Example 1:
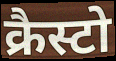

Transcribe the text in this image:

क्रैस्टो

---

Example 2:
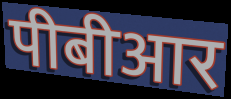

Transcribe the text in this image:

पीबीआर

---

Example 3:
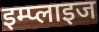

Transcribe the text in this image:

इम्प्लाइज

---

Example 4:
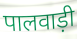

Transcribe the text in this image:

पालवाड़ी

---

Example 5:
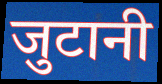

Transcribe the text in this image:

जुटानी